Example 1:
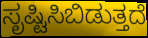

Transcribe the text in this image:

ಸೃಷ್ಟಿಸಿಬಿಡುತ್ತದೆ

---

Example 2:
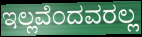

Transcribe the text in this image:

ಇಲ್ಲವೆಂದವರಲ್ಲ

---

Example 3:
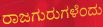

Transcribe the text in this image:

ರಾಜಗುರುಗಳೆಂದು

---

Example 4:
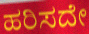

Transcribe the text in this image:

ಹರಿಸದೇ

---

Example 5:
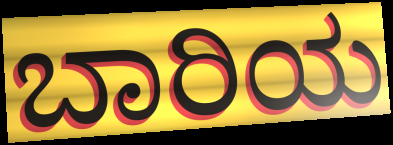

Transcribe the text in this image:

ಬಾರಿಯ